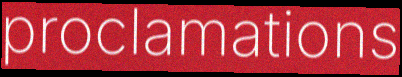
proclamations